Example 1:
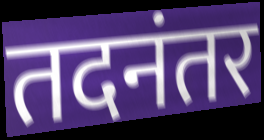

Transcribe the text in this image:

तदनंतर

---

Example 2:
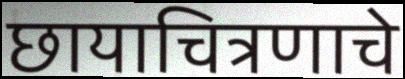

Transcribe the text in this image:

छायाचित्रणाचे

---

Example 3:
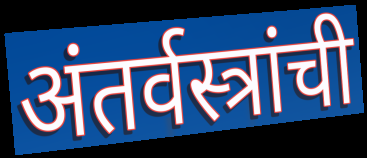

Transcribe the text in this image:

अंतर्वस्त्रांची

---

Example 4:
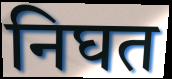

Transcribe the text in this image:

निघत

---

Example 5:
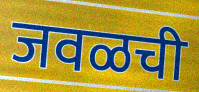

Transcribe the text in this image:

जवळची